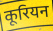
कूरियन